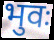
भुवः